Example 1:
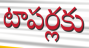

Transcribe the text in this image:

టాపర్లకు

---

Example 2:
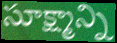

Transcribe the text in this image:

సూక్ష్మాన్ని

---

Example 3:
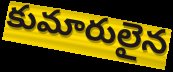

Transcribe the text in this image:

కుమారులైన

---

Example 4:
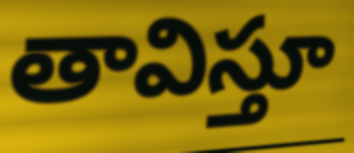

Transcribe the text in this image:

తావిస్తూ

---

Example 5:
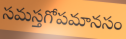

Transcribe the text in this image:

సమస్తగోపమానసం